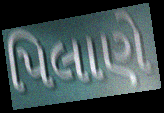
પિલાણે